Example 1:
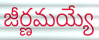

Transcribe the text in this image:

జీర్ణమయ్యే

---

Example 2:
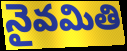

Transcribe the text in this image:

నైవమితి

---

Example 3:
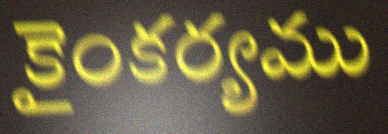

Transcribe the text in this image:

కైంకర్యము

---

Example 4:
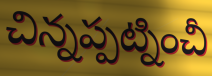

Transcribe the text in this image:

చిన్నప్పట్నించీ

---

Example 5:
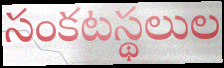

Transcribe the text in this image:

సంకటస్థలుల